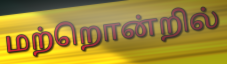
மற்றொன்றில்